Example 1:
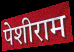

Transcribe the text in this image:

पेशीराम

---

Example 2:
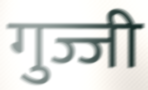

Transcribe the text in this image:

गुज्जी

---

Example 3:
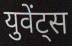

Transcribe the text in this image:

युवेंट्स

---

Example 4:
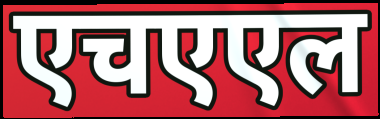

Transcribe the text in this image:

एचएएल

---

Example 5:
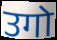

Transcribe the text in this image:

उगो